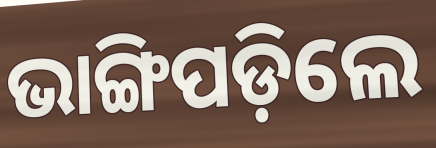
ଭାଙ୍ଗିପଡ଼ିଲେ